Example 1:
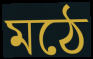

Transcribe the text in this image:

মঠে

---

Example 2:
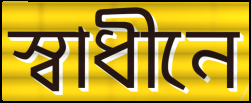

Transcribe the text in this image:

স্বাধীনে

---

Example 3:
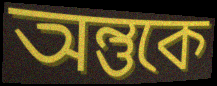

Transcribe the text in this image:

অন্তুকে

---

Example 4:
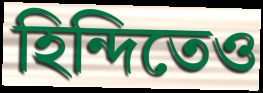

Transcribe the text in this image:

হিন্দিতেও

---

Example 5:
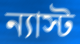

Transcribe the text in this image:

ন্যাস্ট